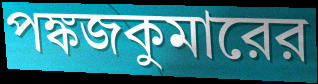
পঙ্কজকুমারের